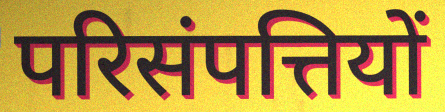
परिसंपत्तियों